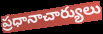
ప్రధానాచార్యులు